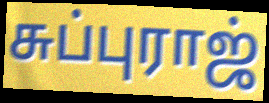
சுப்புராஜ்